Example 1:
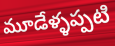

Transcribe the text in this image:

మూడేళ్ళప్పటి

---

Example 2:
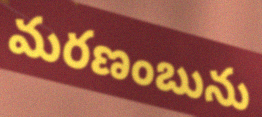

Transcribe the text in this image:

మరణంబును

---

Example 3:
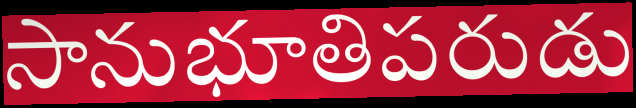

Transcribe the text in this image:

సానుభూతిపరుడు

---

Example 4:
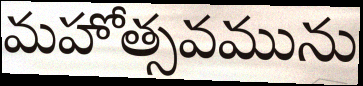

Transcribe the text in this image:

మహోత్సవమును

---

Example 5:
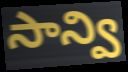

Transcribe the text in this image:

సాన్వి